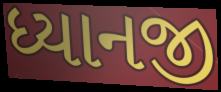
ધ્યાનજી